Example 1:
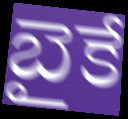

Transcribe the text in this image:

బైకే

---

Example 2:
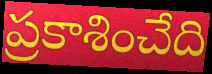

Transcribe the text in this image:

ప్రకాశించేది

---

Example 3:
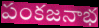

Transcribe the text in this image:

పంకజనాభ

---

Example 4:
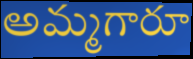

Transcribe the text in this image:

అమ్మగారూ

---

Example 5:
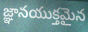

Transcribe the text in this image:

జ్ఞానయుక్తమైన